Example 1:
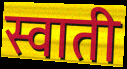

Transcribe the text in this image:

स्वाती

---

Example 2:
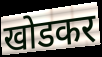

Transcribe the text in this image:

खोडकर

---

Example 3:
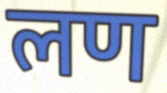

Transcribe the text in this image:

लण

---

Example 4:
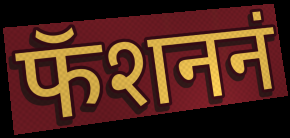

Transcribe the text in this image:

फॅशननं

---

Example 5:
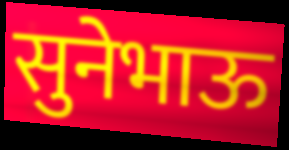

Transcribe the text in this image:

सुनेभाऊ